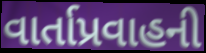
વાર્તાપ્રવાહની